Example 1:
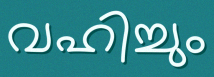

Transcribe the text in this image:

വഹിച്ചും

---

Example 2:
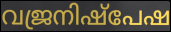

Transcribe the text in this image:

വജ്രനിഷ്പേഷ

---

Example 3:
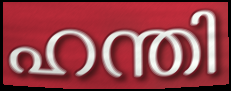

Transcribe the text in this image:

ഹന്തി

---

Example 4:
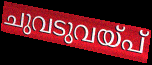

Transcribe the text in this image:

ചുവടുവയ്പ്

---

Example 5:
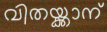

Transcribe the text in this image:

വിതയ്ക്കാന്